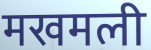
मखमली